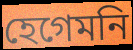
হেগেমনি